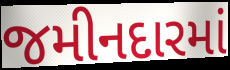
જમીનદારમાં